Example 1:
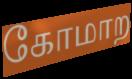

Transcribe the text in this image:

கோமாற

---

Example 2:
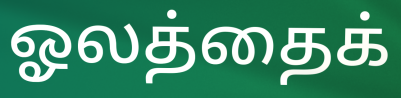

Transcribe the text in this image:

ஓலத்தைக்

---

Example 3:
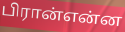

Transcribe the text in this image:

பிரான்என்ன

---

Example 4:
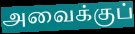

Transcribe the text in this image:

அவைக்குப்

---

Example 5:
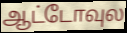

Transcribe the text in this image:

ஆட்டோவுல